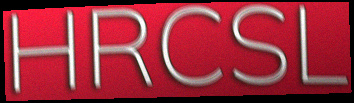
HRCSL